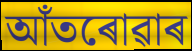
আঁতৰোৱাৰ